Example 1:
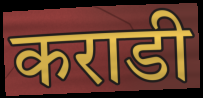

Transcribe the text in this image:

कराडी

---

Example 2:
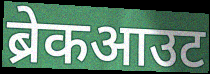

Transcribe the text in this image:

ब्रेकआउट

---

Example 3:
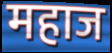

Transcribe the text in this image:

महाज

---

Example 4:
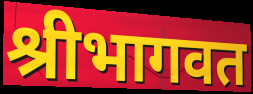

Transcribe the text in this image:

श्रीभागवत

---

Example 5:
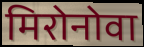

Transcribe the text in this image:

मिरोनोवा